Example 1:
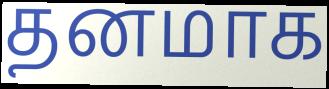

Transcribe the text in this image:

தனமாக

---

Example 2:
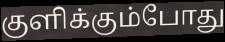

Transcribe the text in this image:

குளிக்கும்போது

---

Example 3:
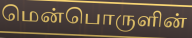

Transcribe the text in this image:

மென்பொருளின்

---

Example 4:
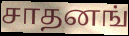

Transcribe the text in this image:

சாதனங்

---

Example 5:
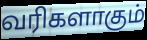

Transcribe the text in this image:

வரிகளாகும்